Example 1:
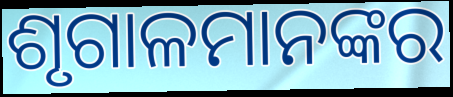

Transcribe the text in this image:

ଶୃଗାଳମାନଙ୍କର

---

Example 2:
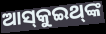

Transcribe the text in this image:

ଆସ୍‌କୁଇଥ୍‌ଙ୍କ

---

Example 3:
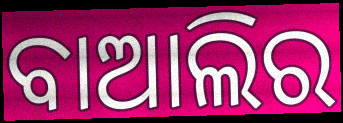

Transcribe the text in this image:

ବାଆଲିର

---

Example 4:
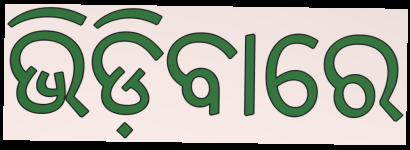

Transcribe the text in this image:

ଭିଡ଼ିବାରେ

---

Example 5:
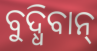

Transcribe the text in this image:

ବୁଦ୍ଧିବାନ୍